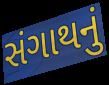
સંગાથનું